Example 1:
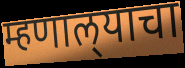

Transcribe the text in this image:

म्हणाल्याचा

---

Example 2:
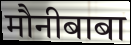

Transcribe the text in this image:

मौनीबाबा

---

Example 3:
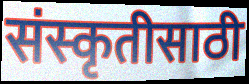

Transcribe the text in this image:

संस्कृतीसाठी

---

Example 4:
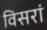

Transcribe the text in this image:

विसरां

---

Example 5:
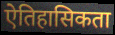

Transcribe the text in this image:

ऐतिहासिकता